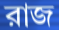
রাজ